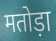
मतोड़ा